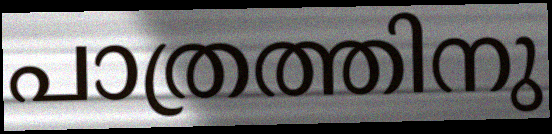
പാത്രത്തിനു